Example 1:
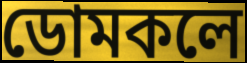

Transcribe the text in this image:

ডোমকলে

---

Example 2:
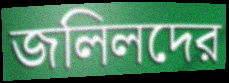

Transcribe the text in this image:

জলিলদের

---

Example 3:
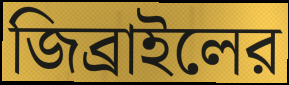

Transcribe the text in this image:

জিব্রাইলের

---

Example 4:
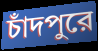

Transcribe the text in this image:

চাঁদপুরে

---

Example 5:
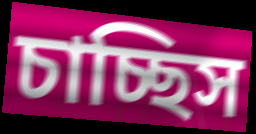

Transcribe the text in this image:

চাচ্ছিস